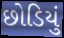
છોડિયું